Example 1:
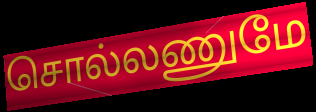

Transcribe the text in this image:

சொல்லணுமே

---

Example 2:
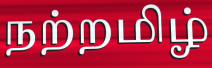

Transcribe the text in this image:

நற்றமிழ்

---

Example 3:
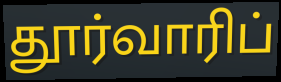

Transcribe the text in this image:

தூர்வாரிப்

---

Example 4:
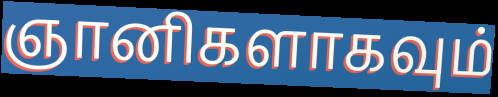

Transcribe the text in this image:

ஞானிகளாகவும்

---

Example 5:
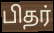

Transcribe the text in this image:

பிதர்